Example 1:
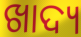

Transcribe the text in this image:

ଖାଦ୍ୟ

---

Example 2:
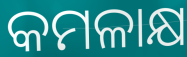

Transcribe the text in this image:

କମଳାକ୍ଷ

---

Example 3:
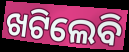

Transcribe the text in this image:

ଖଟିଲେବି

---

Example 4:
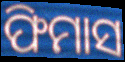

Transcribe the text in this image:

ଫିମାସ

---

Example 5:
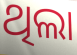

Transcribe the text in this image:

ଥିଲା